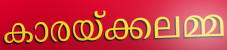
കാരയ്ക്കലമ്മ